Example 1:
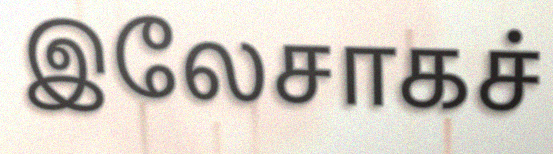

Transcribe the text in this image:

இலேசாகச்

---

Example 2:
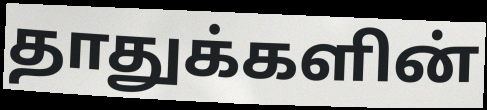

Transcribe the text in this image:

தாதுக்களின்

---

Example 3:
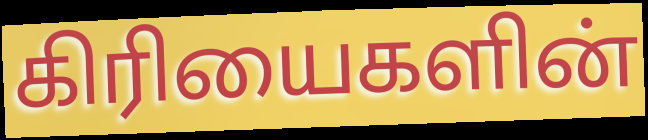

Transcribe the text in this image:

கிரியைகளின்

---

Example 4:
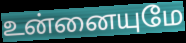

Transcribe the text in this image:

உன்னையுமே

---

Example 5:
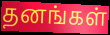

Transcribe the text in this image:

தனங்கள்